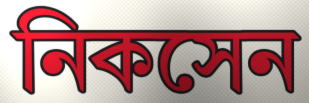
নিকসেন